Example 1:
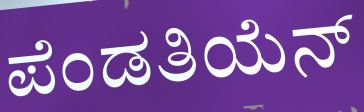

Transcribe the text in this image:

ಪೆಂಡತಿಯೆನ್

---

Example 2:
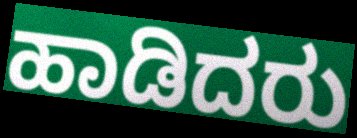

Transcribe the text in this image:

ಹಾಡಿದರು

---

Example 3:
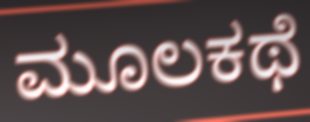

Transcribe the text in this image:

ಮೂಲಕಥೆ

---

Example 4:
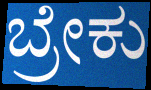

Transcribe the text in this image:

ಬ್ರೇಕು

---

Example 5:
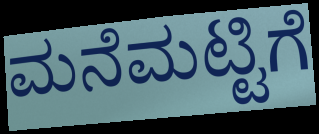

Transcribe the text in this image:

ಮನೆಮಟ್ಟಿಗೆ